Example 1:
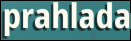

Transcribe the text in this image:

prahlada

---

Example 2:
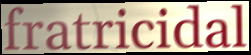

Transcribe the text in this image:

fratricidal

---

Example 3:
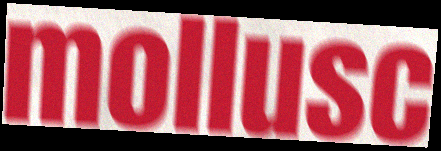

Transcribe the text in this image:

mollusc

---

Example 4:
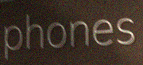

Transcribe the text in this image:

phones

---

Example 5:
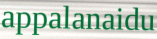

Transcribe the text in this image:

appalanaidu